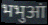
भभुआं